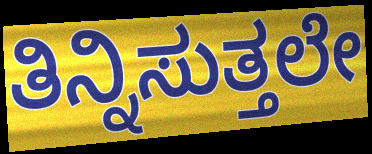
ತಿನ್ನಿಸುತ್ತಲೇ